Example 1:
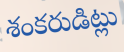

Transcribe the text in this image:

శంకరుడిట్లు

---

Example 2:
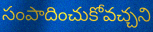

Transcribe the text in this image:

సంపాదించుకోవచ్చని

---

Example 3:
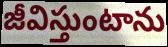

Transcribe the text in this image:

జీవిస్తుంటాను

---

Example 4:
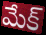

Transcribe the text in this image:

మేక్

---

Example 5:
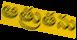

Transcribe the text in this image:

ఆత్రుతను